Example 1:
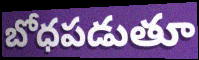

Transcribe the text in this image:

బోధపడుతూ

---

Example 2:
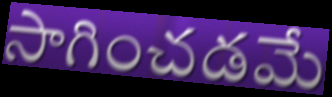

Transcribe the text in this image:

సాగించడమే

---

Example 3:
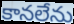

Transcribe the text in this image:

కానలేను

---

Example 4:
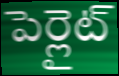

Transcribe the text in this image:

పెర్లైట్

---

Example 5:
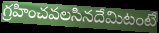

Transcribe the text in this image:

గ్రహించవలసినదేమిటంటే